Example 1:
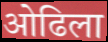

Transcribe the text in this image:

ओढिला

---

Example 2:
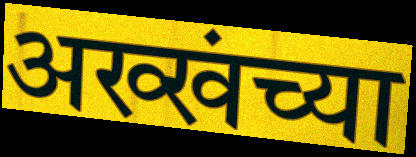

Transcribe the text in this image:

अख्खंच्या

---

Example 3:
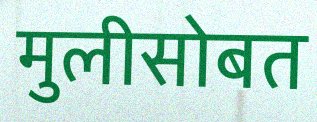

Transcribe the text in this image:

मुलीसोबत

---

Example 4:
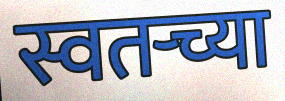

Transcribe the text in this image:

स्वतर्‍च्या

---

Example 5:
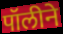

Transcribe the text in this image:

पॉलीने